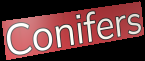
Conifers